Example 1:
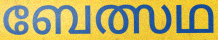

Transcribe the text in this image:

ബേത്സഥ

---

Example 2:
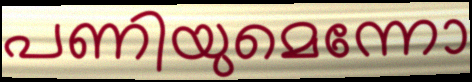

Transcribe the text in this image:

പണിയുമെന്നോ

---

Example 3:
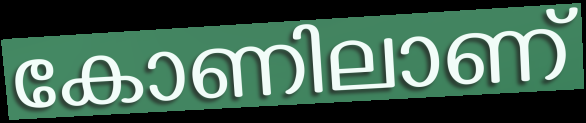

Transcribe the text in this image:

കോണിലാണ്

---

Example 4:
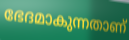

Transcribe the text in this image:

ഭേദമാകുന്നതാണ്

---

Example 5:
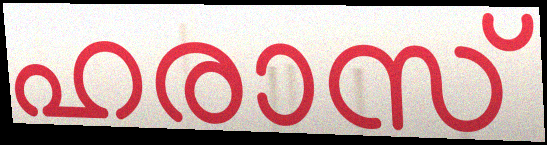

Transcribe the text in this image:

ഹരാസ്